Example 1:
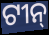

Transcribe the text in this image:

ଟୀନ୍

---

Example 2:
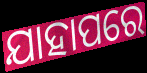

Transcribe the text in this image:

ଯାହାପରେ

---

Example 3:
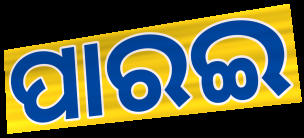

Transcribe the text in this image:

ପାରଇ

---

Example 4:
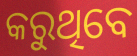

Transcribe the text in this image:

କରୁଥିବେ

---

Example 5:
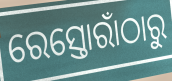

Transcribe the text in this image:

ରେସ୍ତୋରାଁଠାରୁ